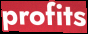
profits